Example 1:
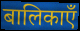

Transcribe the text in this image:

बालिकाएँ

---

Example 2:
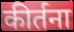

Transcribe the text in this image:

कीर्तना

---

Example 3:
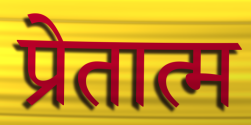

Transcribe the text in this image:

प्रेतात्म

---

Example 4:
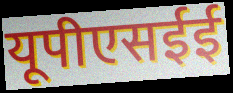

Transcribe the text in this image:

यूपीएसईई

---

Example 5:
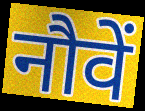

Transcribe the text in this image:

नौवें